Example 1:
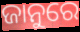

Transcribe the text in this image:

ଜାନୁରେ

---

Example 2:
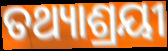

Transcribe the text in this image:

ତଥ୍ୟାଶ୍ରୟୀ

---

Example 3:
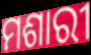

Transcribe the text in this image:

ମଶାରୀ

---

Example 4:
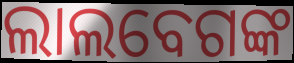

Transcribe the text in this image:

ଲାଲବେଗଙ୍କ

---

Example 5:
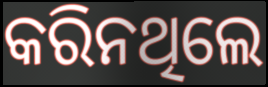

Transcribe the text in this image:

କରିନଥିଲେ